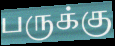
பருக்கு